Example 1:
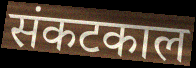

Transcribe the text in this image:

संकटकाल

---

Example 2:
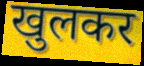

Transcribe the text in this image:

खुलकर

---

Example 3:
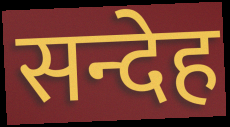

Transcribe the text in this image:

सन्देह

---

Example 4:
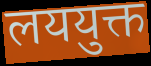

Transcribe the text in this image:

लययुक्त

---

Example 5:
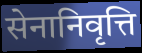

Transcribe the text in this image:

सेनानिवृत्ति